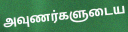
அவுணர்களுடைய